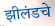
झीलंडचे